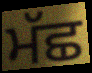
ਮੱਛ